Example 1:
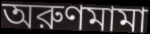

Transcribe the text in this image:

অরুণমামা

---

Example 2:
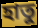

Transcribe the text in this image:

হাতু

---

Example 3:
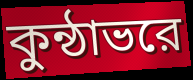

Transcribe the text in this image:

কুন্ঠাভরে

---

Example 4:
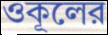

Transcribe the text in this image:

ওকূলের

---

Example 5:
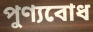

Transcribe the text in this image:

পুণ্যবোধ